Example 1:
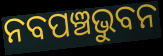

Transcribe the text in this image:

ନବପଞ୍ଚଭୁବନ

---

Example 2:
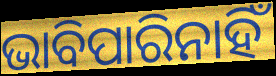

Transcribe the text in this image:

ଭାବିପାରିନାହିଁ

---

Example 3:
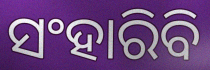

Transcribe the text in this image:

ସଂହାରିବି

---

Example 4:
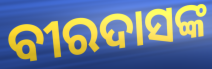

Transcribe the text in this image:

ବୀରଦାସଙ୍କ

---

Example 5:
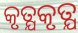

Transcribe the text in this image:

କୃତ୍ଯକୃତ୍ଯ